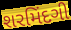
શરમિંદગી